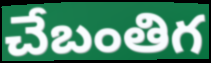
చేబంతిగ